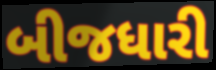
બીજધારી